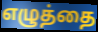
எழுத்தை